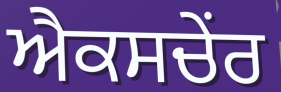
ਐਕਸਚੇਂਰ